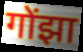
गोंझा